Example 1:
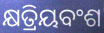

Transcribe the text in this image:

କ୍ଷତ୍ରିୟବଂଶ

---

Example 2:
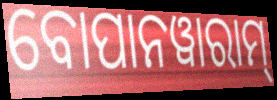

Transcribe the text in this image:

ବୋପାନୱାରାମ୍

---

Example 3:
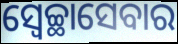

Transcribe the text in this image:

ସ୍ୱେଚ୍ଛାସେବାର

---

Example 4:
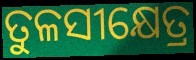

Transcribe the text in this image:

ତୁଳସୀକ୍ଷେତ୍ର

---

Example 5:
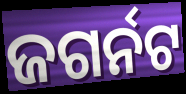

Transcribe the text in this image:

ଜଗର୍ନଟ